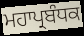
ਮਹਾਪ੍ਰਬੰਧਕ